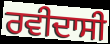
ਰਵੀਦਾਸੀ